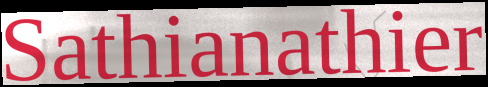
Sathianathier